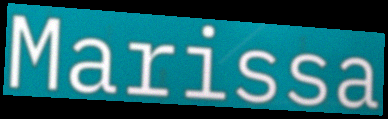
Marissa